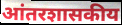
आंतरशासकीय